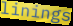
linings